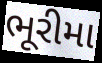
ભૂરીમા